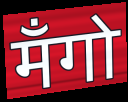
मँगो